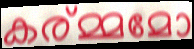
കര്മ്മമോ